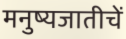
मनुष्यजातीचें